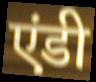
एंडी